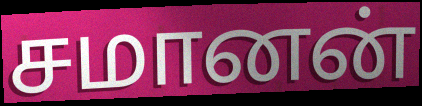
சமானன்